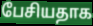
பேசியதாக